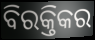
ବିରକ୍ତିକର